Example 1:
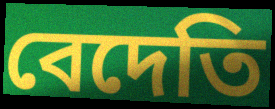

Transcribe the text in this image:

বেদেতি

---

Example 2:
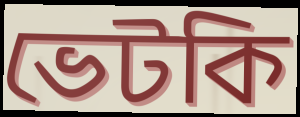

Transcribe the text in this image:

ভেটকি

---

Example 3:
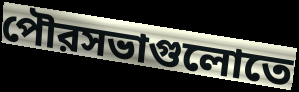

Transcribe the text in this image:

পৌরসভাগুলোতে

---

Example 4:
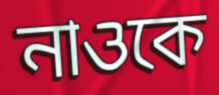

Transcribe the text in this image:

নাওকে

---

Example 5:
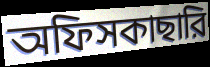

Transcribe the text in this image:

অফিসকাছারি